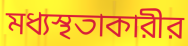
মধ্যস্থতাকারীর